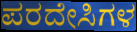
ಪರದೇಸಿಗಳ